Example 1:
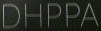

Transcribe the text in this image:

DHPPA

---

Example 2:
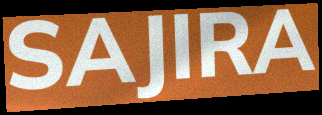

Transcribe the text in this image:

SAJIRA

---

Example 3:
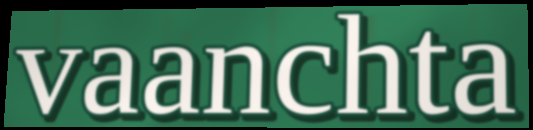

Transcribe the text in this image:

vaanchta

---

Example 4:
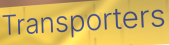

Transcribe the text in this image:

Transporters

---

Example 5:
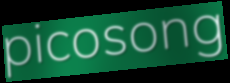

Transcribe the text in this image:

picosong